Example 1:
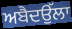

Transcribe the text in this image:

ਅਬੈਦਉੱਲਾ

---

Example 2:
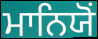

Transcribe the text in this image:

ਮਾਨਿਯੋਂ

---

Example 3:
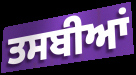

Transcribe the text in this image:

ਤਸਬੀਆਂ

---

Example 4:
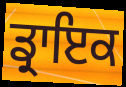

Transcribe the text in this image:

ਡ੍ਰਾਇਕ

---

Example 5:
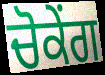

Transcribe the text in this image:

ਚੋਕੇਂਗ